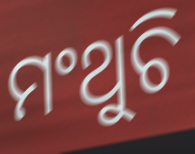
ମଂଥୁଚି